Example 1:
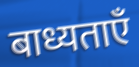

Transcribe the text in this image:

बाध्यताएँ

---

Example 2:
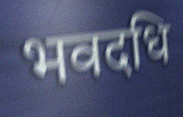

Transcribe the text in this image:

भवदधि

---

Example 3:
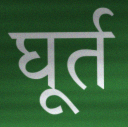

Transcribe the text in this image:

घूर्त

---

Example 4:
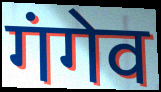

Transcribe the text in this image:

गंगेव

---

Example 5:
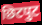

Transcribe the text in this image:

छिटपुट